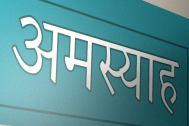
अमस्याह